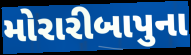
મોરારીબાપુના